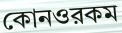
কোনওরকম